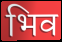
भिव